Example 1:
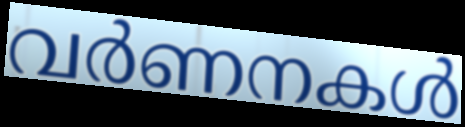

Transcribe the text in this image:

വർണനകൾ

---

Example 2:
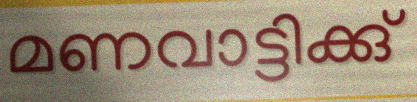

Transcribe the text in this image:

മണവാട്ടിക്കു്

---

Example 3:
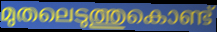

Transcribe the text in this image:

മുതലെടുത്തുകൊണ്ട്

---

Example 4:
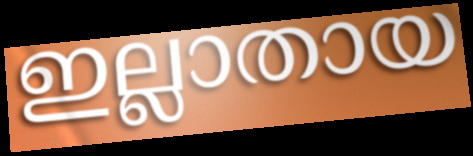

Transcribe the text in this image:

ഇല്ലാതായ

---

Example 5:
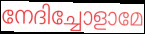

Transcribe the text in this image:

നേദിച്ചോളാമേ